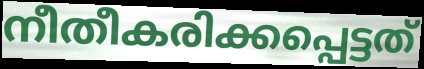
നീതീകരിക്കപ്പെട്ടത്